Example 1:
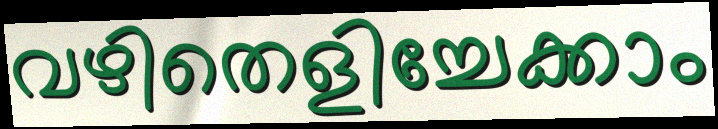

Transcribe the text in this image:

വഴിതെളിച്ചേക്കാം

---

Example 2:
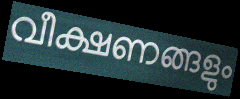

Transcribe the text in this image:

വീക്ഷണങ്ങളും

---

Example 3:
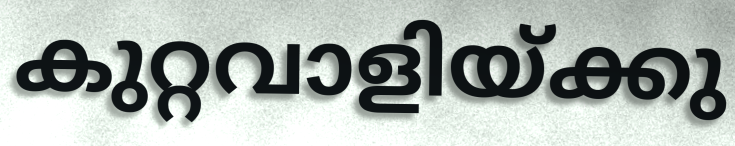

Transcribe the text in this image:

കുറ്റവാളിയ്ക്കു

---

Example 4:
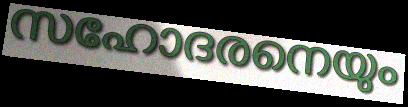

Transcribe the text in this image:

സഹോദരനെയും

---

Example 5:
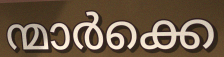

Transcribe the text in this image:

ന്മാർക്കെ